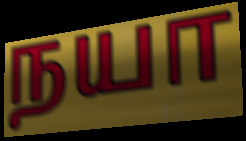
நயா